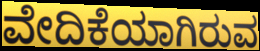
ವೇದಿಕೆಯಾಗಿರುವ